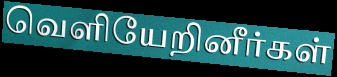
வெளியேறினீர்கள்